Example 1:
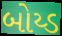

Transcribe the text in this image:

બોય્ડ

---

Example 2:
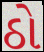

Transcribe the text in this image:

ઠો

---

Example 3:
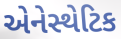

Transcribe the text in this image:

એનેસ્થેટિક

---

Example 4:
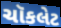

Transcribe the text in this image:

ચૉકલેટ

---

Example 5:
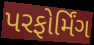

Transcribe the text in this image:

પરફોર્મિંગ